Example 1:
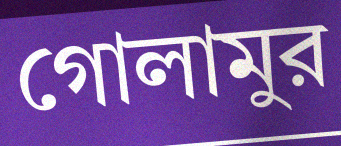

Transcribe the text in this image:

গোলামুর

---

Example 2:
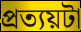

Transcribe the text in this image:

প্রত্যয়টা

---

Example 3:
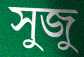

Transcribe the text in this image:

সুজু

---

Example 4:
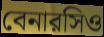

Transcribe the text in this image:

বেনারসিও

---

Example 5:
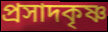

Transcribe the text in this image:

প্রসাদকৃষ্ণ